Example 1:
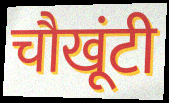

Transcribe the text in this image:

चौखूंटी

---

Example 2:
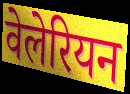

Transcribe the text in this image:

वेलेरियन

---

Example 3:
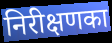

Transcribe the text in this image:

निरीक्षणका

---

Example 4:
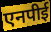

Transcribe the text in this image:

एनपीई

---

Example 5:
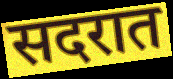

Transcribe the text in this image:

सदरात